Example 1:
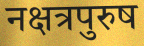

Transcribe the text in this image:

नक्षत्रपुरुष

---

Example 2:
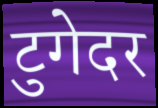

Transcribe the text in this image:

टुगेदर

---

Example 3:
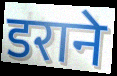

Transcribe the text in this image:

डराने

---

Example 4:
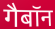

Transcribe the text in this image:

गैबॉन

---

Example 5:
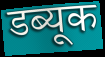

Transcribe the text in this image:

डब्यूक